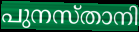
പുനസ്താനി